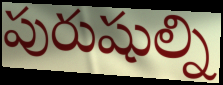
పురుషుల్ని